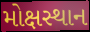
મોક્ષસ્થાન